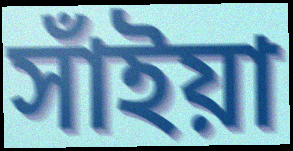
সাঁইয়া